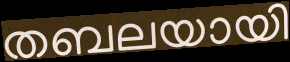
തബലയായി